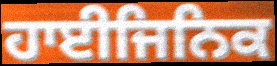
ਹਾਈਜਿਨਿਕ